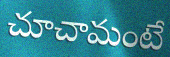
చూచామంటే